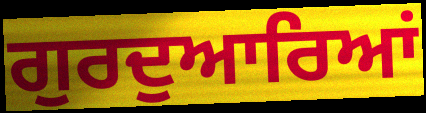
ਗੁਰਦੁਆਰਿਆਂ